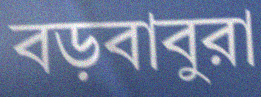
বড়বাবুরা